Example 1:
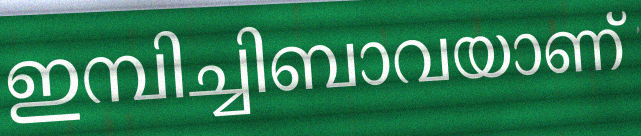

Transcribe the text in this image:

ഇമ്പിച്ചിബാവയാണ്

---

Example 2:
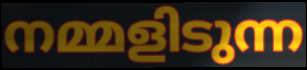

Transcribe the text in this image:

നമ്മളിടുന്ന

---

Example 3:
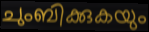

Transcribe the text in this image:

ചുംബിക്കുകയും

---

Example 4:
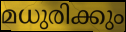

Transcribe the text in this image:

മധുരിക്കും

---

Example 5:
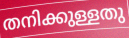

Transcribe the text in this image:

തനിക്കുള്ളതു